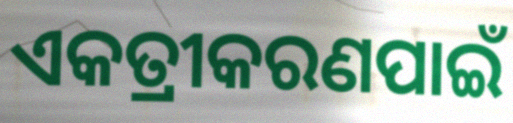
ଏକତ୍ରୀକରଣପାଇଁ